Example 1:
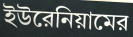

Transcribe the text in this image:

ইউরেনিয়ামের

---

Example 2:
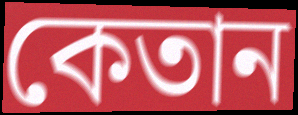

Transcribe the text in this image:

কেতান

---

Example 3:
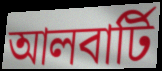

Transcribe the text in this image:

আলবার্টি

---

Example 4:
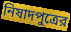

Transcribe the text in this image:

নিষাদপুত্রের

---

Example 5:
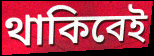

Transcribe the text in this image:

থাকিবেই